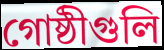
গোষ্ঠীগুলি